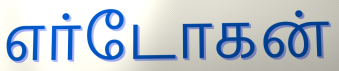
எர்டோகன்